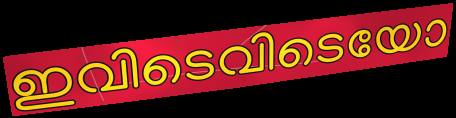
ഇവിടെവിടെയോ